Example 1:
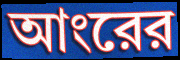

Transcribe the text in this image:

আংরের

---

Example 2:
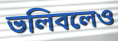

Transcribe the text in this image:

ভলিবলেও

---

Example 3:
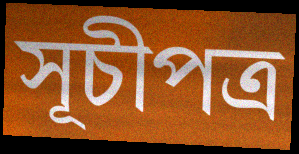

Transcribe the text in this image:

সূচীপত্র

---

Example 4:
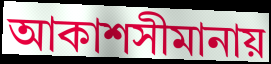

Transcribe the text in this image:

আকাশসীমানায়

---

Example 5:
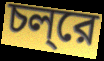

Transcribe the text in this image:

চল্‌রে